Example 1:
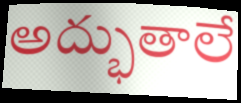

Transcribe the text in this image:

అద్భుతాలే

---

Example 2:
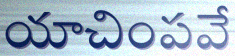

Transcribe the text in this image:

యాచింపవే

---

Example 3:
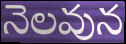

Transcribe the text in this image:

నెలవున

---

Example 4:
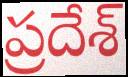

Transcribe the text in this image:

ప్రదేశ్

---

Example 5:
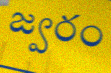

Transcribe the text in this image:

జ్వరం